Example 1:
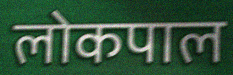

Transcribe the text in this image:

लोकपाल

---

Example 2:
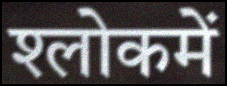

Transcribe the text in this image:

श्लोकमें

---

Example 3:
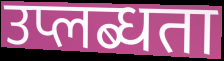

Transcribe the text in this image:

उप्लब्धता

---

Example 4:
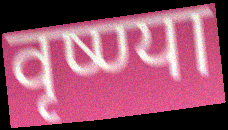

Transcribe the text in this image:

वृष्ण्या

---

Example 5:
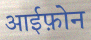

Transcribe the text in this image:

आईफ़ोन